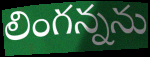
లింగన్నను